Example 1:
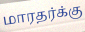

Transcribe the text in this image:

மாரதர்க்கு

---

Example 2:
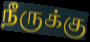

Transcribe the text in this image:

நீருக்கு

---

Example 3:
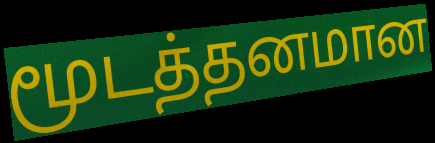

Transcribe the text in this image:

மூடத்தனமான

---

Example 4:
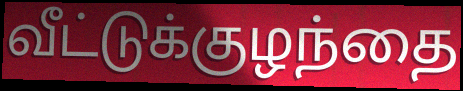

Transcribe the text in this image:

வீட்டுக்குழந்தை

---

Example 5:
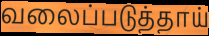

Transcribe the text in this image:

வலைப்படுத்தாய்